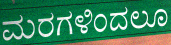
ಮರಗಳಿಂದಲೂ